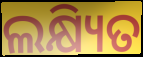
ଲକ୍ଷ୍ୟିତ